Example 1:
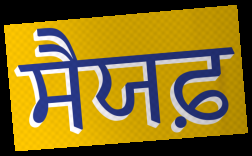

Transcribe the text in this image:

ਸੈਯਫ਼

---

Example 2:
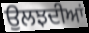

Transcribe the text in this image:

ਉਲਝਦੀਆਂ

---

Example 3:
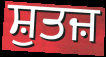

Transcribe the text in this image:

ਸ਼ੁਤਜ਼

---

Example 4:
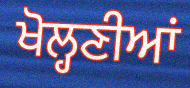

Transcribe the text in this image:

ਖੋਲ੍ਹਣੀਆਂ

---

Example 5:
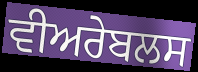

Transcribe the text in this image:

ਵੀਅਰੇਬਲਸ